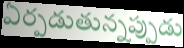
ఏర్పడుతున్నప్పుడు